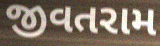
જીવતરામ